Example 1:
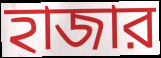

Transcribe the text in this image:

হাজার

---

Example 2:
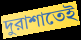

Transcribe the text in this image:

দুরাশাতেই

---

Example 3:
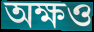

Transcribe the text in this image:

অক্ষও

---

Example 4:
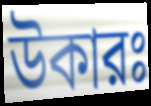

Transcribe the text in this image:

উকারঃ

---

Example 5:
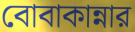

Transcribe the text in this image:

বোবাকান্নার